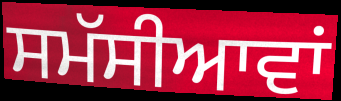
ਸਮੱਸੀਆਵਾਂ